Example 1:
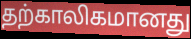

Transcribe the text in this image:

தற்காலிகமானது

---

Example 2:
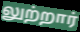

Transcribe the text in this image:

லுற்றார்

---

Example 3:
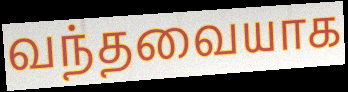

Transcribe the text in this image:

வந்தவையாக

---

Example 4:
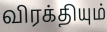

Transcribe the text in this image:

விரக்தியும்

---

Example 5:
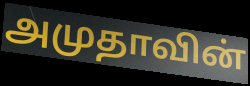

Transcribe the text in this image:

அமுதாவின்